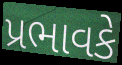
પ્રભાવકે